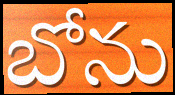
బోను